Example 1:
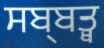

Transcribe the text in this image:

ਸਬ੍ਬਤ੍ਥ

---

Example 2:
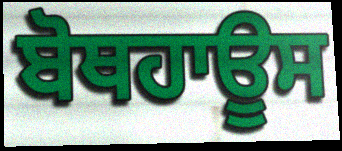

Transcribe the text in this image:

ਬੋਥਹਾਊਸ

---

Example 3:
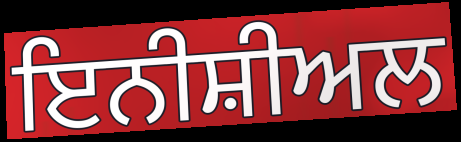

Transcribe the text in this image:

ਇਨੀਸ਼ੀਅਲ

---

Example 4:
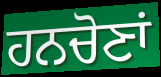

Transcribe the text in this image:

ਹਨਚੋਣਾਂ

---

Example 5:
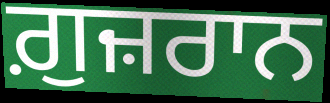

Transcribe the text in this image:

ਗ਼ੁਜ਼ਰਾਨ